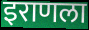
इराणला